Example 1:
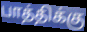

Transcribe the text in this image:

பாத்திக்கு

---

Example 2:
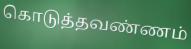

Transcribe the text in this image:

கொடுத்தவண்ணம்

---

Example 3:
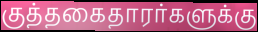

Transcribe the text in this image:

குத்தகைதாரர்களுக்கு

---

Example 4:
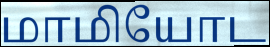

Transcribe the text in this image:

மாமியோட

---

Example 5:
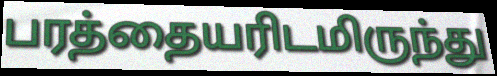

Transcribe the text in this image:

பரத்தையரிடமிருந்து